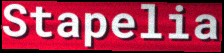
Stapelia